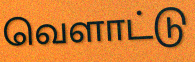
வெளாட்டு